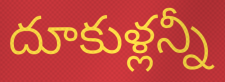
దూకుళ్లన్నీ